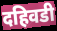
दहिवडी